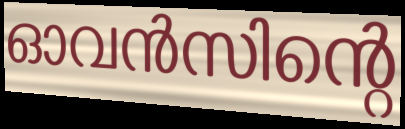
ഓവൻസിന്റെ